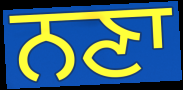
ਨਣਾ